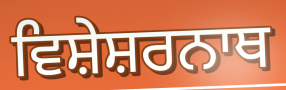
ਵਿਸ਼ੇਸ਼ਰਨਾਥ